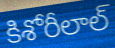
కిశోరీలాల్